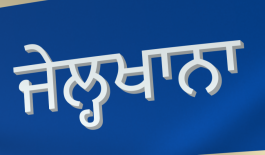
ਜੇਲ੍ਹਖਾਨਾ